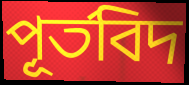
পূর্তবিদ